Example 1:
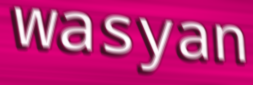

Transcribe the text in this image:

wasyan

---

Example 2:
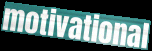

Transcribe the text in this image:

motivational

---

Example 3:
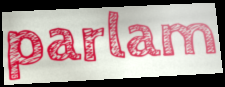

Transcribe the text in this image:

parlam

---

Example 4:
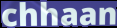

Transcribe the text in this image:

chhaan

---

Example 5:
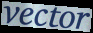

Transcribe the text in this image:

vector